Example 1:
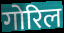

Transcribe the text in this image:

गोरिल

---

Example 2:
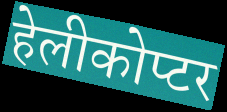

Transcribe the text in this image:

हेलीकोप्टर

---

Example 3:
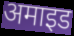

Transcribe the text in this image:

अमाइड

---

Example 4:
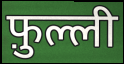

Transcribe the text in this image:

फ़ुल्ली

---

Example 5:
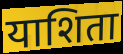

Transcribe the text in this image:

याशिता